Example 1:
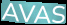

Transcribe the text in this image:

AVAS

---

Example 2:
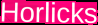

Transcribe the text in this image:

Horlicks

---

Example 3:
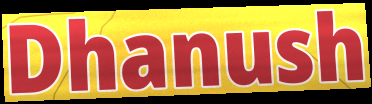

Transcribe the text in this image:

Dhanush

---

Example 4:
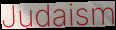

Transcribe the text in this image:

Judaism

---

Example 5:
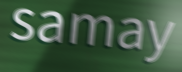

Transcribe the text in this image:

samay